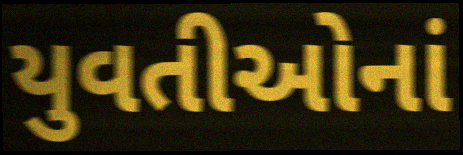
યુવતીઓનાં